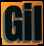
Gil